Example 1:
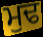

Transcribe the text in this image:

ਮੁਢ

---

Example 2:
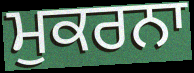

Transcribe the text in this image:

ਮੁਕਰਨਾ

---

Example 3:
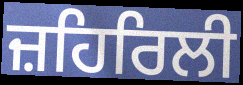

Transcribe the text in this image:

ਜ਼ਹਿਰਿਲੀ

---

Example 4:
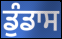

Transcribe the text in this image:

ਡੁੰਡਾਸ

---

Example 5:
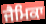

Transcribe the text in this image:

ਜੈਮਿਕਾ